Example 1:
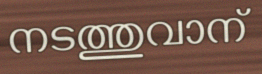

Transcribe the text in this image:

നടത്തുവാന്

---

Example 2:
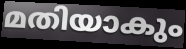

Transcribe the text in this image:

മതിയാകും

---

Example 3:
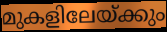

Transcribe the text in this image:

മുകളിലേയ്ക്കും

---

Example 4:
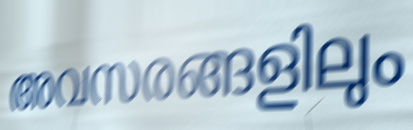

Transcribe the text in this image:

അവസരങ്ങളിലും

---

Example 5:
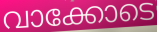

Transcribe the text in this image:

വാക്കോടെ